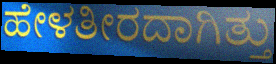
ಹೇಳತೀರದಾಗಿತ್ತು